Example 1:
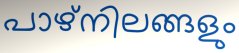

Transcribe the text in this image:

പാഴ്നിലങ്ങളും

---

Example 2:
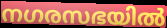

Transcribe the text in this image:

നഗരസഭയിൽ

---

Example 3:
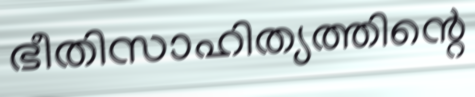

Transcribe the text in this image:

ഭീതിസാഹിത്യത്തിന്റെ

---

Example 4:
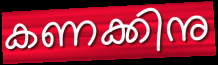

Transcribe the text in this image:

കണക്കിനു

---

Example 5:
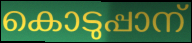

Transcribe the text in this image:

കൊടുപ്പാന്